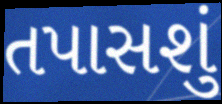
તપાસશું